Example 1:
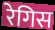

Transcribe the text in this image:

रेगिस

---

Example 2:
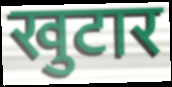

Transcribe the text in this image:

खुटार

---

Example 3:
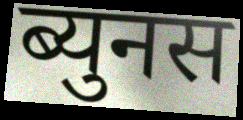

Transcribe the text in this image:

ब्युनस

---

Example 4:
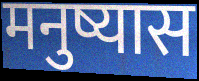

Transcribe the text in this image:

मनुष्यास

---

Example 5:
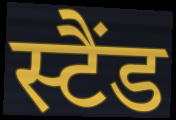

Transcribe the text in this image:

स्‍टैंड